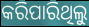
କରିପାରିଥିଲୁ